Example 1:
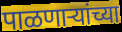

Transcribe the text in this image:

पाळणाऱ्यांच्या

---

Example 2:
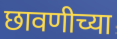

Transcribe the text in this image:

छावणीच्या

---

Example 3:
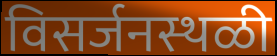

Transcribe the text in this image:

विसर्जनस्थळी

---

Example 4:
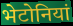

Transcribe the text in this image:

भेटोनियां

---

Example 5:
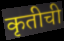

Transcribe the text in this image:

कृतीची